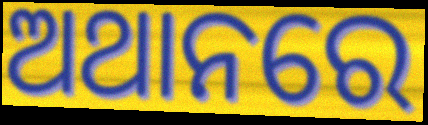
ଅଥାନରେ